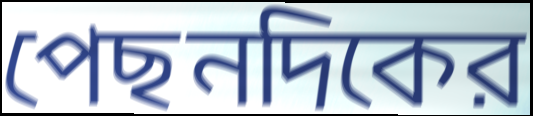
পেছনদিকের